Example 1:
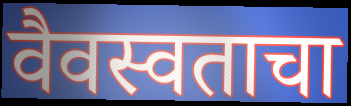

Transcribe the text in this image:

वैवस्वताचा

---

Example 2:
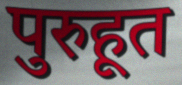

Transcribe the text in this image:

पुरुहूत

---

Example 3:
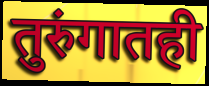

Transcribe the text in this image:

तुरुंगातही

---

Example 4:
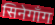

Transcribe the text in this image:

सिनेगाँग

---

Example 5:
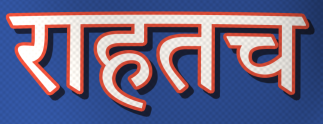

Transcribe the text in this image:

राहतच